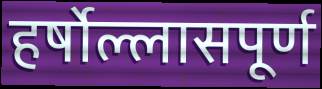
हर्षोल्लासपूर्ण